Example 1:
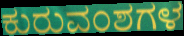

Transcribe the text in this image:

ಕುರುವಂಶಗಳ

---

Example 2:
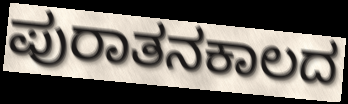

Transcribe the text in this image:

ಪುರಾತನಕಾಲದ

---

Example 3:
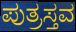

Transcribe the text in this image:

ಪುತ್ರಸ್ತವ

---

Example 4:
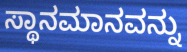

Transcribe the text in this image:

ಸ್ಥಾನಮಾನವನ್ನು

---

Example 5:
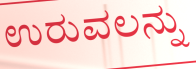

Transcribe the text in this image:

ಉರುವಲನ್ನು